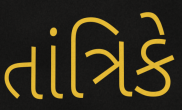
તાંત્રિકે